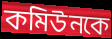
কমিউনকে